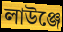
লাউঞ্জে